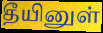
தீயினுள்